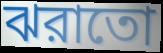
ঝরাতো